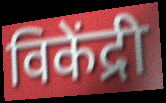
विकेंद्री